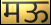
मऊ